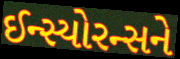
ઈન્સ્યોરન્સને